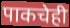
पाकचेही